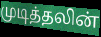
முடித்தலின்